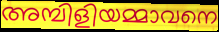
അമ്പിളിയമ്മാവനെ